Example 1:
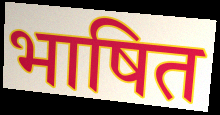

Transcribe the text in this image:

भाषित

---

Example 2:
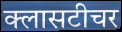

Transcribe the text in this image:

क्लासटीचर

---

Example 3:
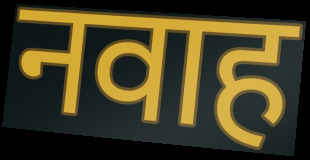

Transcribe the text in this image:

नवाह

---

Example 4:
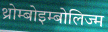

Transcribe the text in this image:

थ्रोम्बोइम्बोलिज्म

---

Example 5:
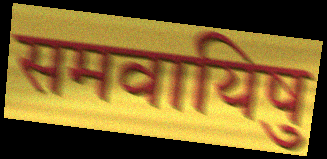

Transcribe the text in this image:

समवायिषु